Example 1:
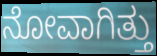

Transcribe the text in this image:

ನೋವಾಗಿತ್ತು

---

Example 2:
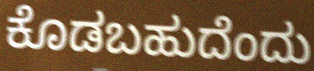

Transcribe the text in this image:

ಕೊಡಬಹುದೆಂದು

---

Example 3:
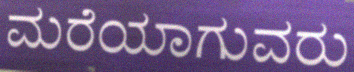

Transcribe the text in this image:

ಮರೆಯಾಗುವರು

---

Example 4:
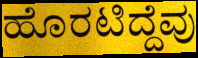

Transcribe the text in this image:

ಹೊರಟಿದ್ದೆವು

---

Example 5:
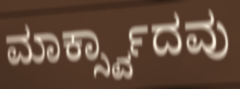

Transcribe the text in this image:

ಮಾರ್ಕ್ಸ್ವಾದವು